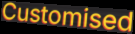
Customised